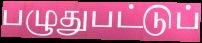
பழுதுபட்டுப்